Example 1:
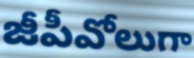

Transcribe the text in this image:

జీపీవోలుగా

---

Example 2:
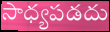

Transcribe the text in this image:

సాధ్యపడదు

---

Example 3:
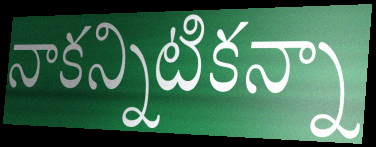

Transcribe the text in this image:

నాకన్నిటికన్నా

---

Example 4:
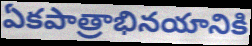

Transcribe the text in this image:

ఏకపాత్రాభినయానికి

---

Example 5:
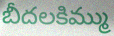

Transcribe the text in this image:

బీదలకిమ్ము